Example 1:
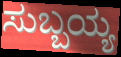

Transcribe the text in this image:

ಸುಬ್ಬಯ್ಯ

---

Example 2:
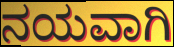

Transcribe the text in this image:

ನಯವಾಗಿ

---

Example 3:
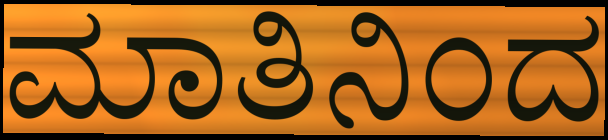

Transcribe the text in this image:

ಮಾತಿನಿಂದ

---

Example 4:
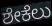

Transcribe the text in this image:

ಶೇಕೆಲು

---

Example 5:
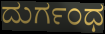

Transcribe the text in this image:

ದುರ್ಗಂಧ